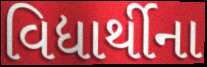
વિદ્યાર્થીના